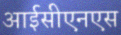
आईसीएनएस